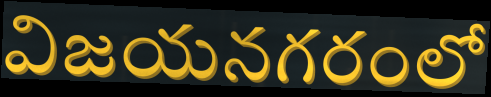
విజయనగరంలో